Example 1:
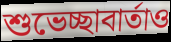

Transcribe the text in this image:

শুভেচ্ছাবার্তাও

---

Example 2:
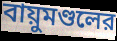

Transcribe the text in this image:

বায়ুমণ্ডলের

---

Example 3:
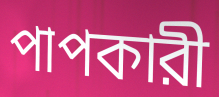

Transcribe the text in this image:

পাপকারী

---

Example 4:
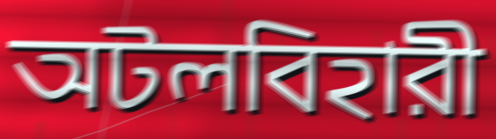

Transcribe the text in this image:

অটলবিহারী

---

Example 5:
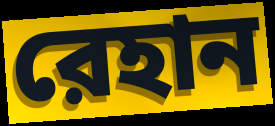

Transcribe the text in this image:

রেহান